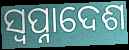
ସ୍ଵପ୍ନାଦେଶ